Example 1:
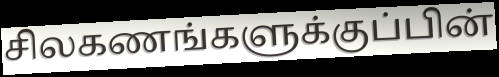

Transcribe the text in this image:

சிலகணங்களுக்குப்பின்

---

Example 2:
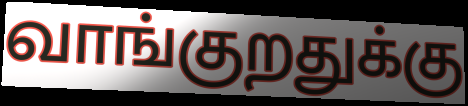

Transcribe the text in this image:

வாங்குறதுக்கு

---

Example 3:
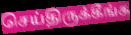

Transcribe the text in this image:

செய்திருக்கீங்க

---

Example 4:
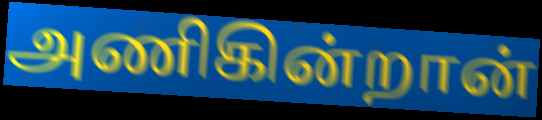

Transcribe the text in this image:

அணிகின்றான்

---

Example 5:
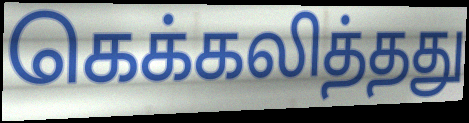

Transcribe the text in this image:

கெக்கலித்தது